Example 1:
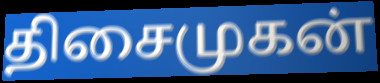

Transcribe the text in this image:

திசைமுகன்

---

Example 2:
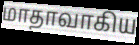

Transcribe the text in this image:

மாதாவாகிய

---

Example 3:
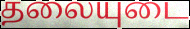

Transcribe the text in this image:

தலையுடை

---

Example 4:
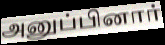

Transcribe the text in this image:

அனுப்பினார்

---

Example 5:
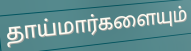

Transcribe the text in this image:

தாய்மார்களையும்